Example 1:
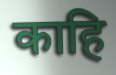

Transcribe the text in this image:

काहि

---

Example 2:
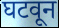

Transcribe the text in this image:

घटवून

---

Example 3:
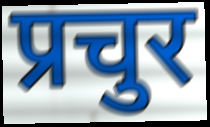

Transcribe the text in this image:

प्रचुर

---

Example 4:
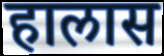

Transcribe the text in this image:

हालास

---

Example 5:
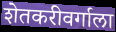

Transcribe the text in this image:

शेतकरीवर्गाला